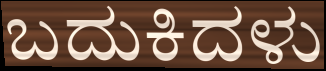
ಬದುಕಿದಳು